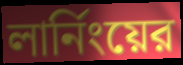
লার্নিংয়ের